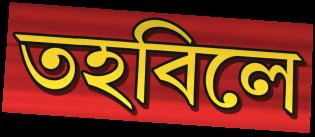
তহবিলে